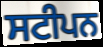
ਸਟੀਪਨ